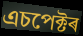
এচপেক্টৰ